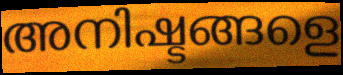
അനിഷ്ടങ്ങളെ